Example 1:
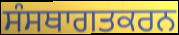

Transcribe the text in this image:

ਸੰਸਥਾਗਤਕਰਨ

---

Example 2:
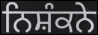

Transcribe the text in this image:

ਨਿਸ਼ੰਕਨੇ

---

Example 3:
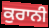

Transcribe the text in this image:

ਕੁਰਾਨੀ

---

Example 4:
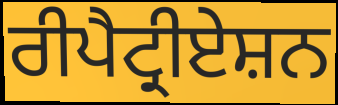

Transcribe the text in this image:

ਰੀਪੈਟ੍ਰੀਏਸ਼ਨ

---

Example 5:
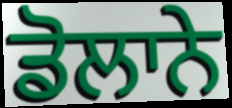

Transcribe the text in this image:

ਡੋਲਾਨੇ